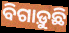
ବିଗାଡ଼ୁଛି